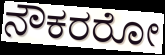
ನೌಕರರೋ